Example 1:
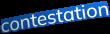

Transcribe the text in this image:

contestation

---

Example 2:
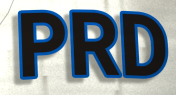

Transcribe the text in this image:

PRD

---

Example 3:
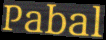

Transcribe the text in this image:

Pabal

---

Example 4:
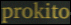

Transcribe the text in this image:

prokito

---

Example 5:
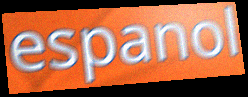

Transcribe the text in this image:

espanol